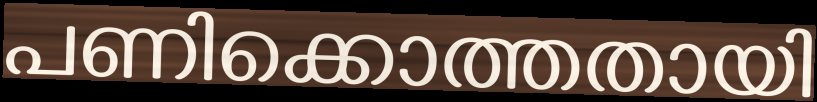
പണിക്കൊത്തതായി